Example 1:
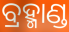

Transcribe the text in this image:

ବ୍ରହ୍ମାଣ୍ଡ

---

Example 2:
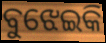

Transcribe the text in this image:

ବୁଝେଇକି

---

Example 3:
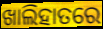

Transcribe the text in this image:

ଖାଲିହାତରେ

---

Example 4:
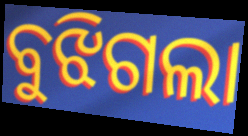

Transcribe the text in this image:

ବୁଝିଗଲା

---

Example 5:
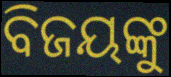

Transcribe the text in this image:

ବିଜୟଙ୍କୁ